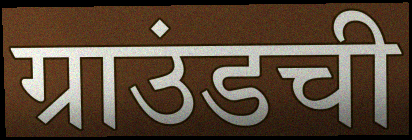
ग्राउंडची